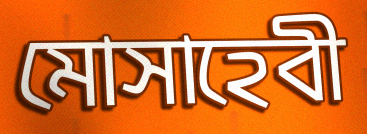
মোসাহেবী